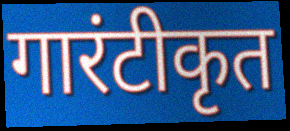
गारंटीकृत